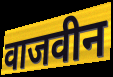
वाजवीन